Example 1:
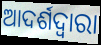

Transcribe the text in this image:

ଆଦର୍ଶଦ୍ୱାରା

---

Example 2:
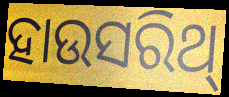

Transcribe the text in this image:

ହାଉସରିଥ୍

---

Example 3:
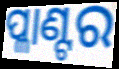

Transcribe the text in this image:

ପ୍ଳାଣ୍ଟର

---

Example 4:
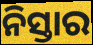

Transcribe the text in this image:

ନିସ୍ତାର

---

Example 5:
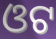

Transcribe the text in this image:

ଓଟ